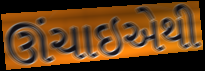
ઊંચાઇએથી